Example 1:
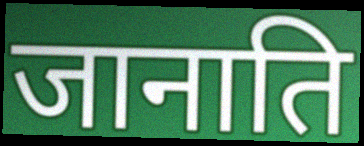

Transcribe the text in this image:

जानाति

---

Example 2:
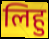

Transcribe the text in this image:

लिहु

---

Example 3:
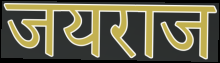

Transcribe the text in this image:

जयराज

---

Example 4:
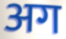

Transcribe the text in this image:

अग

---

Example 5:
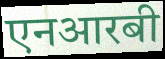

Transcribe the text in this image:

एनआरबी